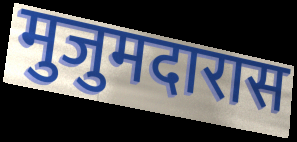
मुजुमदारास